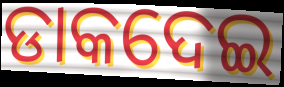
ଡାକଦେଇ